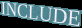
INCLUDE